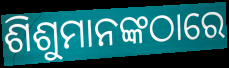
ଶିଶୁମାନଙ୍କଠାରେ